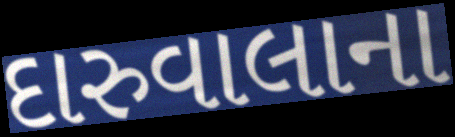
દારુવાલાના